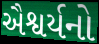
ઐશ્વર્યનો